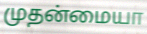
முதன்மையா